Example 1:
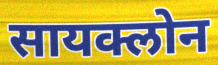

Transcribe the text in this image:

सायक्लोन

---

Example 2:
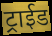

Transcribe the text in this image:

ट्राईड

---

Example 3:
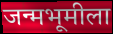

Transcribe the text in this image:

जन्मभूमीला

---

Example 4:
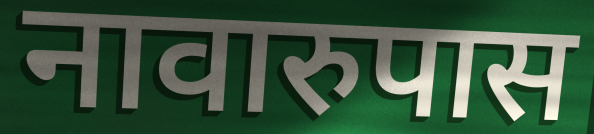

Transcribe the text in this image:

नावारुपास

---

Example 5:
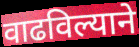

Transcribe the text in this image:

वाढविल्याने